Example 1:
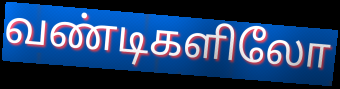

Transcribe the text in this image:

வண்டிகளிலோ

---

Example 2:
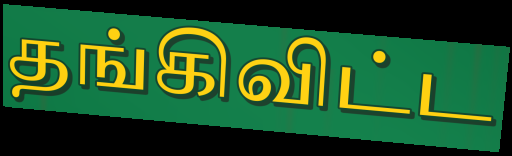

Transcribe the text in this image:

தங்கிவிட்ட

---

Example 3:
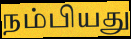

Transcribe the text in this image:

நம்பியது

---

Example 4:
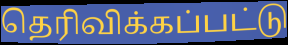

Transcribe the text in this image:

தெரிவிக்கப்பட்டு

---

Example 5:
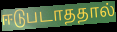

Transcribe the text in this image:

ஈடுபடாததால்